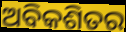
ଅବିକଶିତର